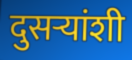
दुसर्‍यांशी